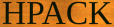
HPACK